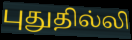
புதுதில்லி